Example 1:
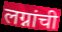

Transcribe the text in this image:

लग्नांची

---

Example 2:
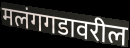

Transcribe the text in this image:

मलंगगडावरील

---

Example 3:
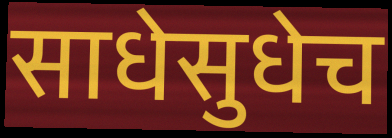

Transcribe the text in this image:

साधेसुधेच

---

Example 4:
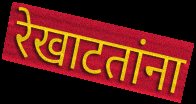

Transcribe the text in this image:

रेखाटतांना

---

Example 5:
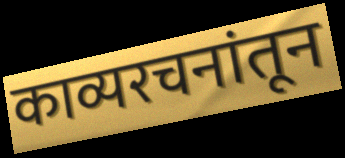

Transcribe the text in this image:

काव्यरचनांतून